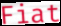
Fiat